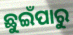
ଛୁଇଁପାରୁ